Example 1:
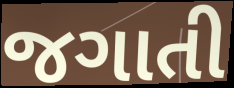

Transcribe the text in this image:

જગાતી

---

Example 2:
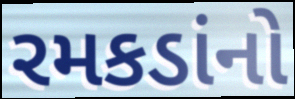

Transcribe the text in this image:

રમકડાંનો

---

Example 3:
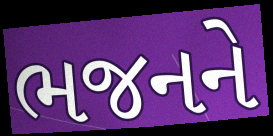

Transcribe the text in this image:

ભજનને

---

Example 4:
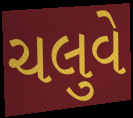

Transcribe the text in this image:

ચલુવે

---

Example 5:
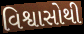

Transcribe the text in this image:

વિશ્વાસોથી